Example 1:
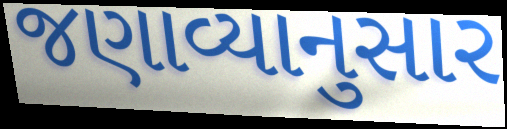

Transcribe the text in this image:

જણાવ્યાનુસાર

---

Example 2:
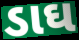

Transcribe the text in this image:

ડાઘ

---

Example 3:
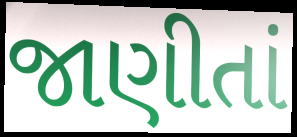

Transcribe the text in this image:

જાણીતાં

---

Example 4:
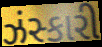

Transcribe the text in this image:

ઝંસ્કારી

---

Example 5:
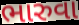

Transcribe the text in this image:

ભારુવા